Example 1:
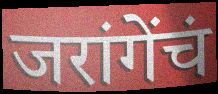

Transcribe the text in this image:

जरांगेंचं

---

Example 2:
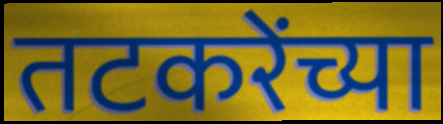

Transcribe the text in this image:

तटकरेंच्या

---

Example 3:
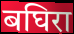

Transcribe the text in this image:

बघिरा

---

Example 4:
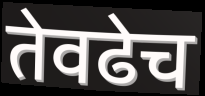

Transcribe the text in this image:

तेवढेच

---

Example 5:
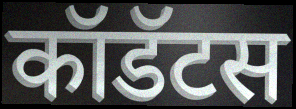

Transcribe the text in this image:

कॉडॅटस